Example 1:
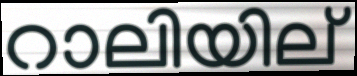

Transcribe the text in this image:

റാലിയില്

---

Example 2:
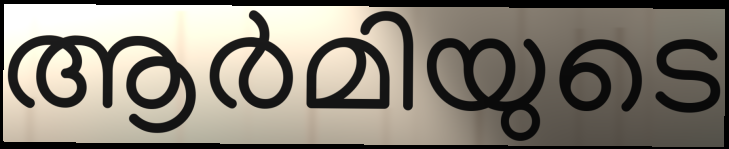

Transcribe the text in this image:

ആർമിയുടെ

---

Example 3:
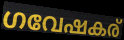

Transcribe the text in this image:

ഗവേഷകര്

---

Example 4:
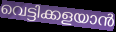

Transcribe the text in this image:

വെട്ടിക്കളയാൻ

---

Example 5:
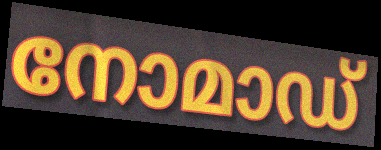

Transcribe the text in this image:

നോമാഡ്